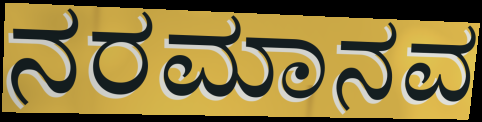
ನರಮಾನವ